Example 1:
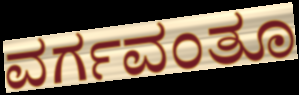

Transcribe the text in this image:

ವರ್ಗವಂತೂ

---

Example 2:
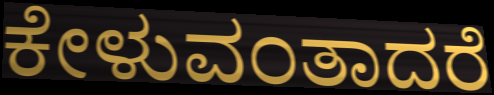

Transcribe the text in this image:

ಕೇಳುವಂತಾದರೆ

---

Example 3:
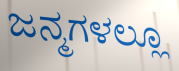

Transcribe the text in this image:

ಜನ್ಮಗಳಲ್ಲೂ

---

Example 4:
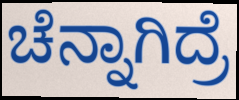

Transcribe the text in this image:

ಚೆನ್ನಾಗಿದ್ರೆ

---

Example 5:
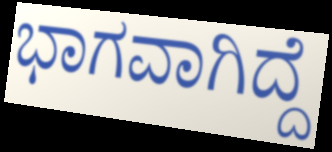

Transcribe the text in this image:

ಭಾಗವಾಗಿದ್ದೆ